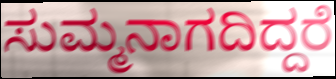
ಸುಮ್ಮನಾಗದಿದ್ದರೆ